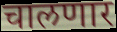
चालणार